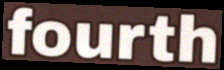
fourth